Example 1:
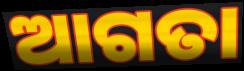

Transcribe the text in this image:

ଆଗତା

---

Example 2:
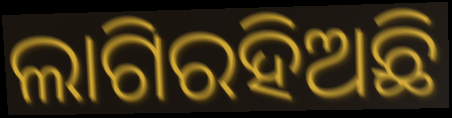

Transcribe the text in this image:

ଲାଗିରହିଅଛି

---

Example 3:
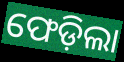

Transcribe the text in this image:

ଫେଡ଼ିଲା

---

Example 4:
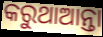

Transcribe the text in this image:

କରୁଥାଆନ୍ତା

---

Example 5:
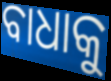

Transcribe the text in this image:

ବାଧାକୁ